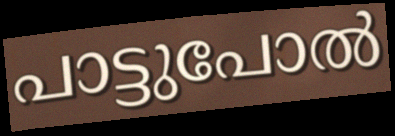
പാട്ടുപോൽ